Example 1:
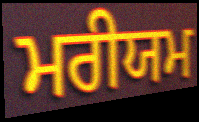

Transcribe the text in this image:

ਮਰੀਯਮ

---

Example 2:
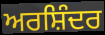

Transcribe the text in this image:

ਅਰਸ਼ਿੰਦਰ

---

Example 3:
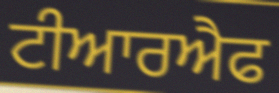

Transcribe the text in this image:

ਟੀਆਰਐਫ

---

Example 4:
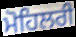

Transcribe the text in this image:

ਮੋਹਿਲਰੀ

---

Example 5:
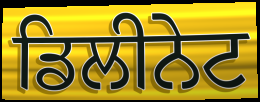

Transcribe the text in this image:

ਡਿਲੀਨੇਟ